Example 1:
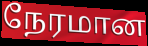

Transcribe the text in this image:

நேரமான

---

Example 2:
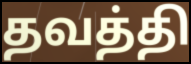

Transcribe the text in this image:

தவத்தி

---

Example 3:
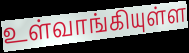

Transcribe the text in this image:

உள்வாங்கியுள்ள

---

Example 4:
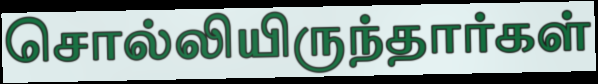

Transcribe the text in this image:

சொல்லியிருந்தார்கள்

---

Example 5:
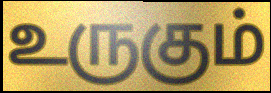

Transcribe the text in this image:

உருகும்